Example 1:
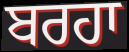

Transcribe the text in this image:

ਬਰਹਾ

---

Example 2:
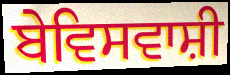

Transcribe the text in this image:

ਬੇਵਿਸਵਾਸ਼ੀ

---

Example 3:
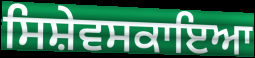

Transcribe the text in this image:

ਸਿਸ਼ੇਵਸਕਾਇਆ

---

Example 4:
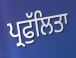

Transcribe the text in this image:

ਪ੍ਰਫੁੱਲਿਤਾ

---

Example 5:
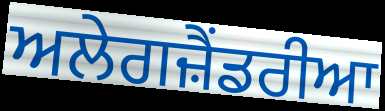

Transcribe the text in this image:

ਅਲੇਗਜ਼ੈਂਡਰੀਆ